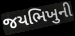
જયભિખુની